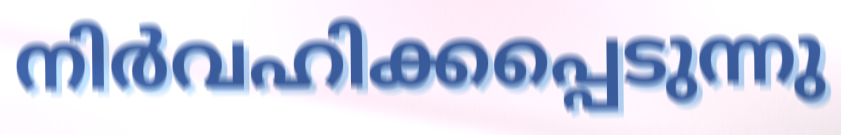
നിർവഹിക്കപ്പെടുന്നു